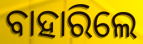
ବାହାରିଲେ